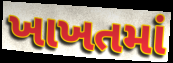
ખાખતમાં